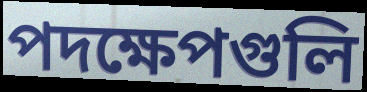
পদক্ষেপগুলি